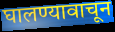
घालण्यावाचून